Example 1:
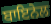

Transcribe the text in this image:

ਬਾਇਨੇਲ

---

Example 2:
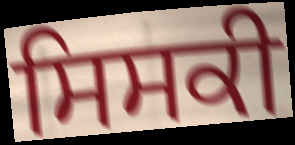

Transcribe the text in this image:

ਸਿਸਕੀ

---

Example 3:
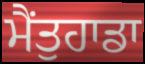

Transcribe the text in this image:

ਮੈਂਤੁਹਾਡਾ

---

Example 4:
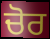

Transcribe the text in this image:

ਚੋਰ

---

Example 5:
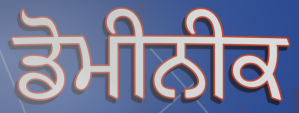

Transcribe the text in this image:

ਡੋਮੀਨੀਕ